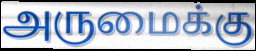
அருமைக்கு